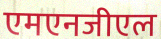
एमएनजीएल